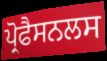
ਪ੍ਰੋਫੈਸਨਲਸ